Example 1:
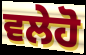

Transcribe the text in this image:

ਵਲੇਹੋ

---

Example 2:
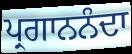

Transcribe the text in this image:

ਪ੍ਰਗਾਨਨੰਦਾ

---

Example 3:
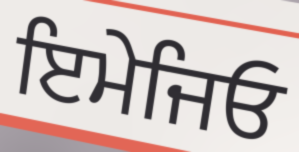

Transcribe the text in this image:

ਇਮੇਜਿਓ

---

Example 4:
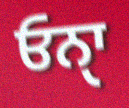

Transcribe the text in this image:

ਓਨਾੑ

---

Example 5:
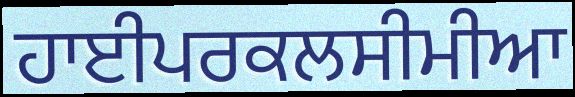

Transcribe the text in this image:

ਹਾਈਪਰਕਲਸੀਮੀਆ